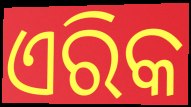
ଏରିକ